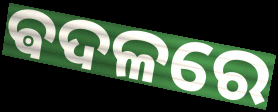
ଵଦଳରେ